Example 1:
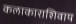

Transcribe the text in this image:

कलाकाराशिवाय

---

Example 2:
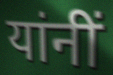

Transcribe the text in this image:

यांनीं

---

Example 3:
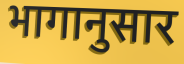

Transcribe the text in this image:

भागानुसार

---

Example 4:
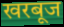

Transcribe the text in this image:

खरबूज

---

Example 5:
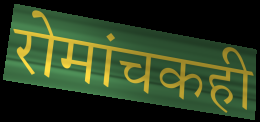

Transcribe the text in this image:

रोमांचकही